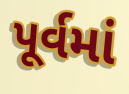
પૂર્વમાં